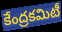
కేంద్రకమిటీ